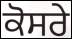
ਕੋਸਰੇ